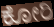
ಕೋರಿ